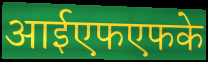
आईएफएफके